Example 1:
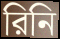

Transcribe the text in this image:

রিনি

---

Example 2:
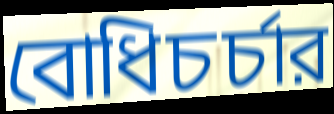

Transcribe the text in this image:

বোধিচর্চার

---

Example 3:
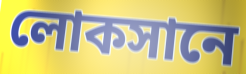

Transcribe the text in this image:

লোকসানে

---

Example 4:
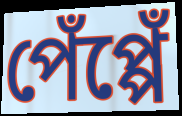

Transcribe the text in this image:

পেঁপ্পেঁ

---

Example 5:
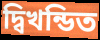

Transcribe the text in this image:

দ্বিখন্ডিত